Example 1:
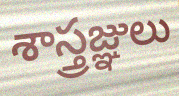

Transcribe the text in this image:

శాస్త్రజ్ఞులు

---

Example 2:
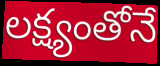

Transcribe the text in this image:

లక్ష్యంతోనే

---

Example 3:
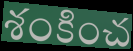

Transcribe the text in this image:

శంకించ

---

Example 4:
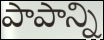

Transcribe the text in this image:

పాపాన్ని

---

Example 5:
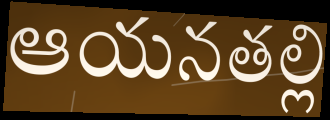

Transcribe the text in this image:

ఆయనతల్లి